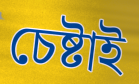
চেষ্টাই